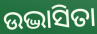
ଉଦ୍ଭାସିତା